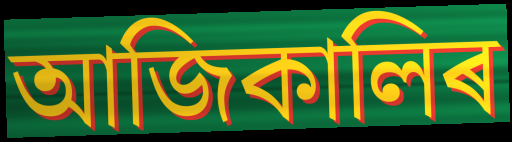
আজিকালিৰ